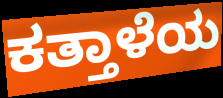
ಕತ್ತಾಳೆಯ